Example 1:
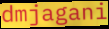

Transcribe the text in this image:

dmjagani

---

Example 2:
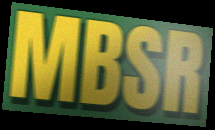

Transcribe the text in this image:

MBSR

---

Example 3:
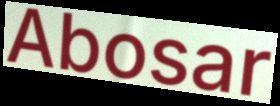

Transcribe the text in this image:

Abosar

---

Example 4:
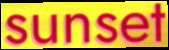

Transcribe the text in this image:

sunset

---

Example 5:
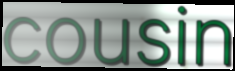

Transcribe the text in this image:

cousin